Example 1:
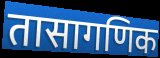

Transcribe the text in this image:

तासागणिक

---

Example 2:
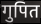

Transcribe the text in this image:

गुपित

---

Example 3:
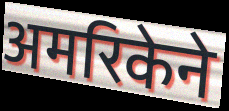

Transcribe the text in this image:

अमरिकेने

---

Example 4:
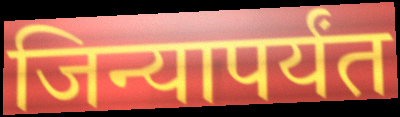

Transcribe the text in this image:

जिन्यापर्यंत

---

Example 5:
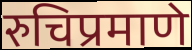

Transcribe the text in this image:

रुचिप्रमाणे